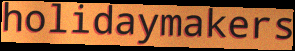
holidaymakers